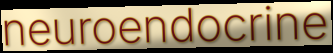
neuroendocrine